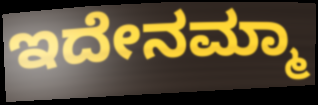
ಇದೇನಮ್ಮಾ